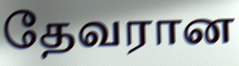
தேவரான